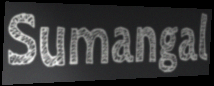
Sumangal